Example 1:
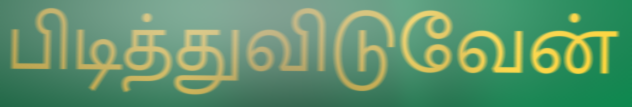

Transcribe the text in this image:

பிடித்துவிடுவேன்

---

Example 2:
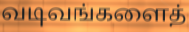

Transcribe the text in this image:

வடிவங்களைத்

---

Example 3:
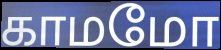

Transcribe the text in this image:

காமமோ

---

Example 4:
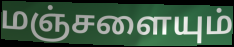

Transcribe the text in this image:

மஞ்சளையும்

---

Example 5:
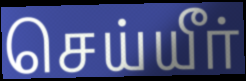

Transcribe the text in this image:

செய்யீர்